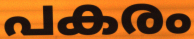
പകരം